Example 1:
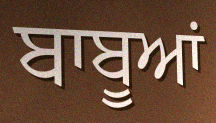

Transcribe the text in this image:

ਬਾਬੂਆਂ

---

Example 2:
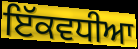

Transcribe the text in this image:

ਇੱਕਵਧੀਆ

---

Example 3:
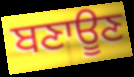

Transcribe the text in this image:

ਬਣਾਊਣ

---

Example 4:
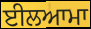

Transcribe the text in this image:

ਈਲਆਮਾ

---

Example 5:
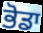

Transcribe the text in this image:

ਭੋਡਾ